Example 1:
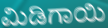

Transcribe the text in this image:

ಮಿಡಿಗಾಯಿ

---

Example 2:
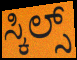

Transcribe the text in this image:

ಸ್ಕಿಲ್ಸ್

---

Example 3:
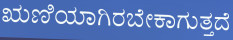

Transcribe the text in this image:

ಋಣಿಯಾಗಿರಬೇಕಾಗುತ್ತದೆ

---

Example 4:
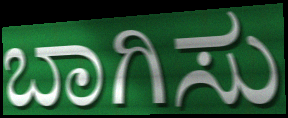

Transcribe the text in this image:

ಬಾಗಿಸು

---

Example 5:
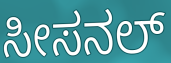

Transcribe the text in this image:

ಸೀಸನಲ್